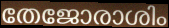
തേജോരാശിം